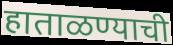
हाताळण्याची